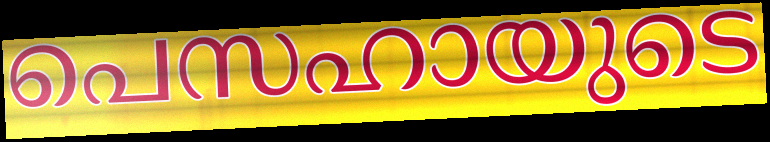
പെസഹായുടെ